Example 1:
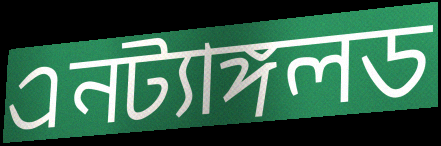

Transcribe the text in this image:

এনট্যাঙ্গলড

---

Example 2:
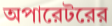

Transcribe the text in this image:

অপারেটরের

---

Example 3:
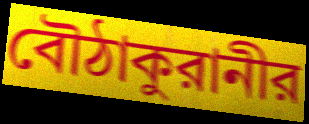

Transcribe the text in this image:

বৌঠাকুরানীর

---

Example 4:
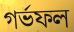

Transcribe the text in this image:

গর্ভফল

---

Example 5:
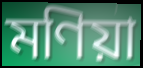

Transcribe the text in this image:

মণিয়া